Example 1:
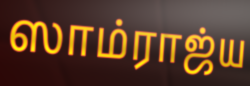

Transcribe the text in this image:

ஸாம்ராஜ்ய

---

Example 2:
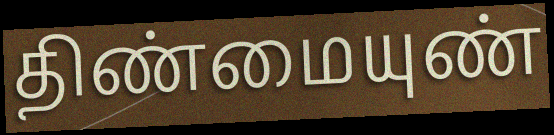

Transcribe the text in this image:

திண்மையுண்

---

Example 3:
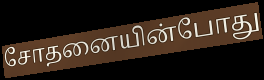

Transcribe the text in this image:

சோதனையின்போது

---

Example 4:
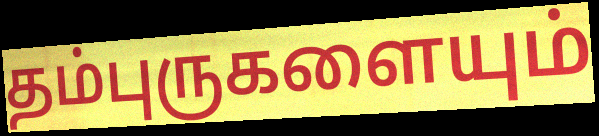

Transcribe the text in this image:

தம்புருகளையும்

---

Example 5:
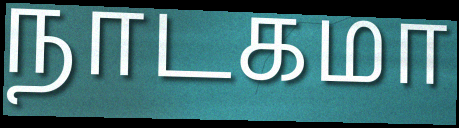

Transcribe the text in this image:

நாடகமா